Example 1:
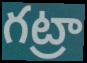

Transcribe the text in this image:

గట్రా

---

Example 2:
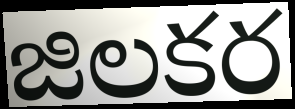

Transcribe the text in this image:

జిలకర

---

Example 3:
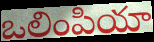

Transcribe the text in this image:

ఒలింపియా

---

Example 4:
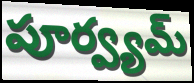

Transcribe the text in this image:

పూర్వ్యమ్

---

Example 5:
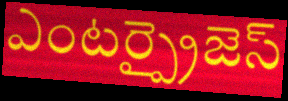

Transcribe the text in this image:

ఎంటర్ప్రైజెస్